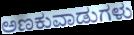
ಅಣಕುವಾಡುಗಳು